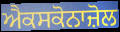
ਐਕਸਕੋਨਾਜ਼ੋਲ